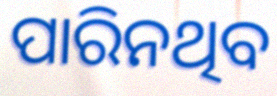
ପାରିନଥିବ